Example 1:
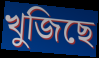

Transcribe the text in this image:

খুজিছে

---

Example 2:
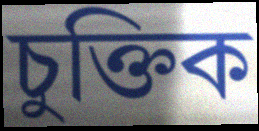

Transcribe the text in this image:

চুক্তিক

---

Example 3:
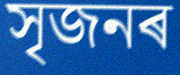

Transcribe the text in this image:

সৃজনৰ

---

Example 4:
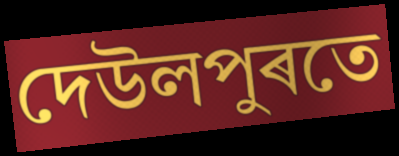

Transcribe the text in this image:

দেউলপুৰতে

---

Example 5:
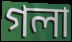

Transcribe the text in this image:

গলা